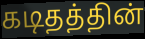
கடிதத்தின்